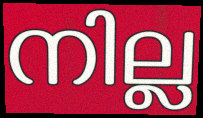
നില്ല